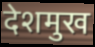
देशमुख